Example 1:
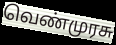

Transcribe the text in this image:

வெண்முரசு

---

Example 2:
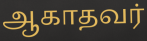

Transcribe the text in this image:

ஆகாதவர்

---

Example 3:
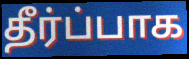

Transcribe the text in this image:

தீர்ப்பாக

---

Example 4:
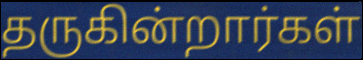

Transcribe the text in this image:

தருகின்றார்கள்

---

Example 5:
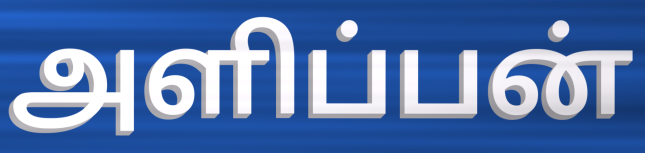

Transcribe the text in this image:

அளிப்பன்